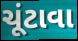
ચૂંટાવા